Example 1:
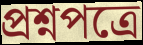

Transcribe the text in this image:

প্রশ্নপত্রে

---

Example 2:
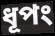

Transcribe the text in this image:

ধূপং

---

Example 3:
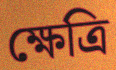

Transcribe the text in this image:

ক্ষেত্রি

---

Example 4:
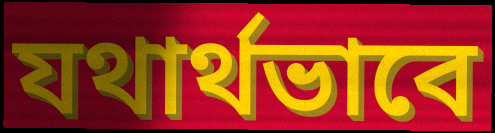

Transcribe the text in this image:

যথার্থভাবে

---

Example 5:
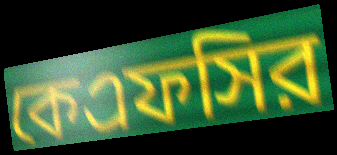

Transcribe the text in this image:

কেএফসির